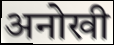
अनोखी